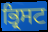
ਭ੍ਰਿਸਟ